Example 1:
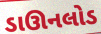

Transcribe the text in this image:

ડાઊનલોડ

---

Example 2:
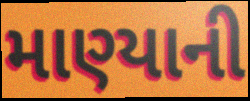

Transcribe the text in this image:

માણ્યાની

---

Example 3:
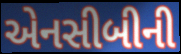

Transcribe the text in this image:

એનસીબીની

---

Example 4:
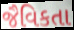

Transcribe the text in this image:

જૈવિકતા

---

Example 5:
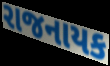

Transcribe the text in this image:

રાજનાયક